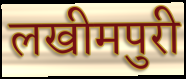
लखीमपुरी